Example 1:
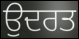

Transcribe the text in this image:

ਉਦਰਤ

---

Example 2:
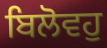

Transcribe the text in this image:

ਬਿਲੋਵਹੁ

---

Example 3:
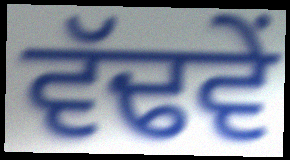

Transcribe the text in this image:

ਵੱਢਵੇਂ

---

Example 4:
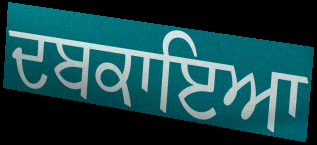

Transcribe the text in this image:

ਦਬਕਾਇਆ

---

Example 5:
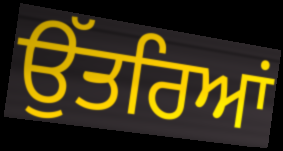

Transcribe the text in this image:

ਉੱਤਰਿਆਂ